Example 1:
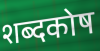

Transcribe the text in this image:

शब्दकोष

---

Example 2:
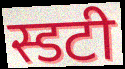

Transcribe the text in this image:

स्डटी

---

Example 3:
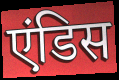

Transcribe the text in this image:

एंडिस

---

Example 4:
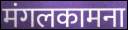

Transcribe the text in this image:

मंगलकामना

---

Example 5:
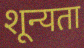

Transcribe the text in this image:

शून्‍यता